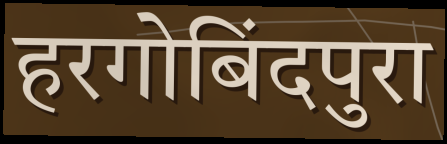
हरगोबिंदपुरा